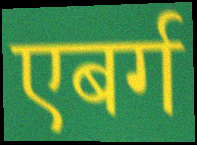
एबर्ग